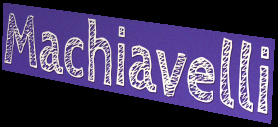
Machiavelli